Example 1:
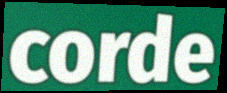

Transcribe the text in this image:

corde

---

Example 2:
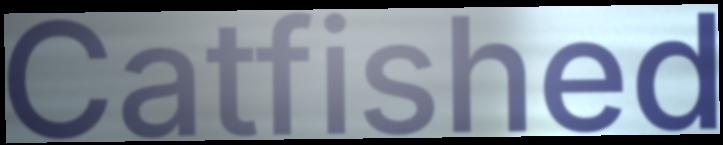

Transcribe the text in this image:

Catfished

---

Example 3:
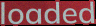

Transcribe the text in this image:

loaded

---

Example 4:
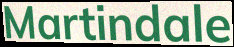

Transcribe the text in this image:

Martindale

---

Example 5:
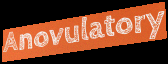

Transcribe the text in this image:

Anovulatory